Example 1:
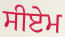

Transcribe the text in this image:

ਸੀਏਮ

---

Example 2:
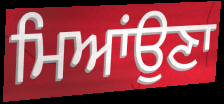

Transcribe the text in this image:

ਮਿਆਂਉਣਾ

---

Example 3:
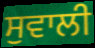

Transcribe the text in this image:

ਸੁਵਾਲੀ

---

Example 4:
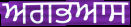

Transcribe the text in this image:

ਅਗਭਆਸ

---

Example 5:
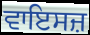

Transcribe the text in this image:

ਵਾਇਸਜ਼